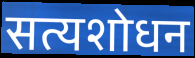
सत्यशोधन